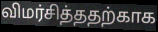
விமர்சித்ததற்காக